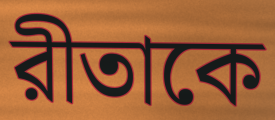
রীতাকে